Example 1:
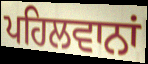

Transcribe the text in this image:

ਪਹਿਲਵਾਨਾਂ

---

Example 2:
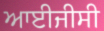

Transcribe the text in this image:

ਆਈਜੀਸੀ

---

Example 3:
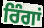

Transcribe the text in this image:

ਰਿੰਗਾਂ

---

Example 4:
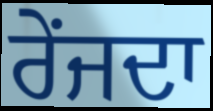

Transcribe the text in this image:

ਰੇਂਜਦਾ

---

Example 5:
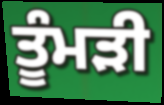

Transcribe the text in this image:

ਤੂੰਮੜੀ